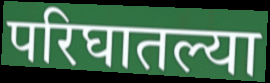
परिघातल्या